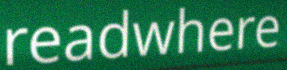
readwhere